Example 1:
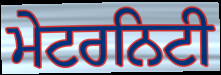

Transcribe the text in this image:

ਮੇਟਰਨਿਟੀ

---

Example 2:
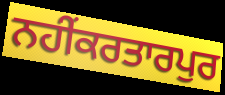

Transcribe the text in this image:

ਨਹੀਂਕਰਤਾਰਪੁਰ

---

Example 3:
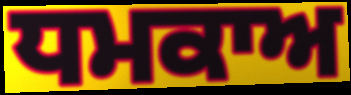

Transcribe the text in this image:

ਧਮਕਾਅ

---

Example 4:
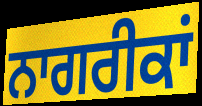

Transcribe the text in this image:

ਨਾਗਰੀਕਾਂ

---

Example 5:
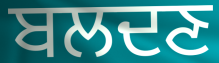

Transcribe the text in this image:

ਬਲਦਣ